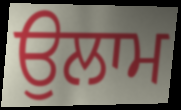
ਉਲਾਮ